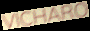
VICHARO